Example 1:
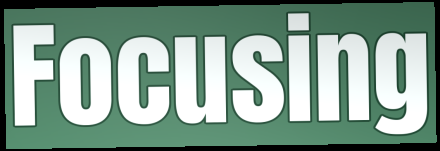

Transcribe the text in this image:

Focusing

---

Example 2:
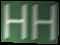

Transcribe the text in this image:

HH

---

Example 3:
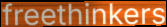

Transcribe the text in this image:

freethinkers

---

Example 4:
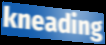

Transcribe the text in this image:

kneading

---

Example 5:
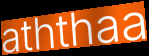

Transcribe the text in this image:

aththaa